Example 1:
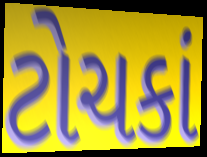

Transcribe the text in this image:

ટોચકાં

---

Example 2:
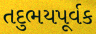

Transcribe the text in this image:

તદુભયપૂર્વક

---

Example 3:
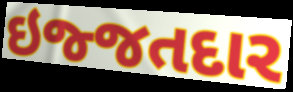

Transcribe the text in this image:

ઇજ્જતદાર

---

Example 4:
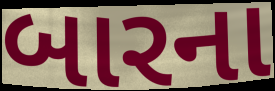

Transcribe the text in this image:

બારના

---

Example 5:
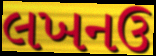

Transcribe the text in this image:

લખનઉ